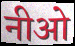
नीओ